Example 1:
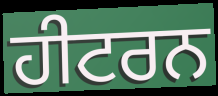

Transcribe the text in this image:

ਹੀਟਰਨ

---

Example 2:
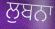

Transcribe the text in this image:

ਲੁਬਨਾ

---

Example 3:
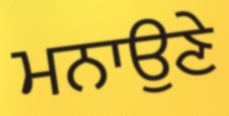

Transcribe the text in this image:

ਮਨਾਉਣੇ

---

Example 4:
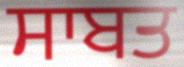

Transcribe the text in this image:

ਸਾਬਤ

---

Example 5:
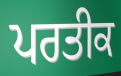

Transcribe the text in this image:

ਪਰਤੀਕ